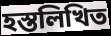
হস্তলিখিত